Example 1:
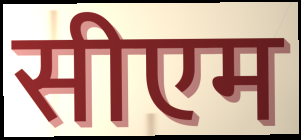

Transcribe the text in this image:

सीएम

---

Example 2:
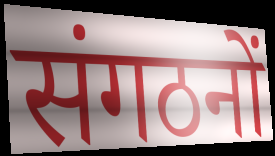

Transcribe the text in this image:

संगठनों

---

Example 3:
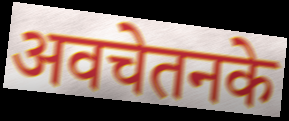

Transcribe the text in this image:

अवचेतनके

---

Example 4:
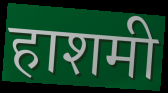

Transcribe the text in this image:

हाशमी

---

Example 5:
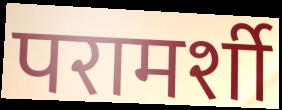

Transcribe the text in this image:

परामर्शी